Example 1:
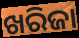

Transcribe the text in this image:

ଖରିଜା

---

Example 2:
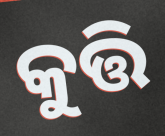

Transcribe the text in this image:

କୁତ୍ତି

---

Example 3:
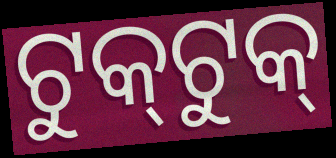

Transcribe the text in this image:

ଟୁକ୍‌ଟୁକ୍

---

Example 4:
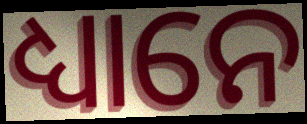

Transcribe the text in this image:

ଧ୍ୟାନେ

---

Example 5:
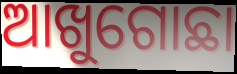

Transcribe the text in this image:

ଆଖୁଗୋଛା